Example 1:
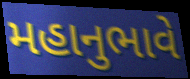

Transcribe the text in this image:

મહાનુભાવે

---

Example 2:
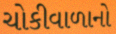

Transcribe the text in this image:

ચોકીવાળાનો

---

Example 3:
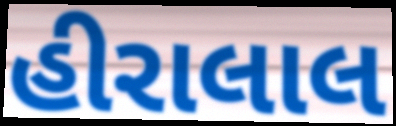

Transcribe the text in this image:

હીરાલાલ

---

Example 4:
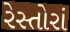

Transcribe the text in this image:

રેસ્તોરાં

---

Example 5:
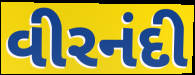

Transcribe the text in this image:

વીરનંદી